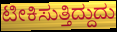
ಟೀಕಿಸುತ್ತಿದ್ದುದು